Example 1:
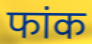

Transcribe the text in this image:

फांक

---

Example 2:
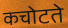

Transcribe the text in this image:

कचोटते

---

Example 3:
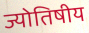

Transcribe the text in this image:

ज्योतिषीय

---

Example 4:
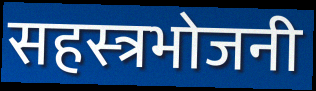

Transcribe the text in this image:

सहस्त्रभोजनी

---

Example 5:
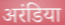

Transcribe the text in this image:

अरंडिया